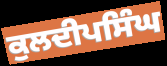
ਕੁਲਦੀਪਸਿੰਘ